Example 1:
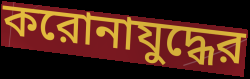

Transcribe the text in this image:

করোনাযুদ্ধের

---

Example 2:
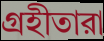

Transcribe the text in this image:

গ্রহীতারা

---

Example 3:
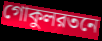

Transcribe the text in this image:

গোকুলরতনে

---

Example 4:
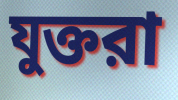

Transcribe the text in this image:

যুক্তরা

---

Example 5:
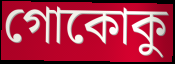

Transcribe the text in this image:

গোকোকু